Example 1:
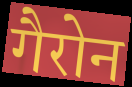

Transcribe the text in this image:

गैरोन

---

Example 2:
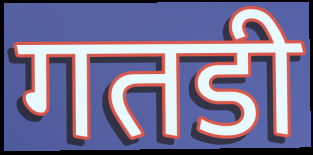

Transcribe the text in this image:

गतडी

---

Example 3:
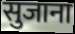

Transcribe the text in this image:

सुजाना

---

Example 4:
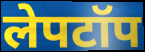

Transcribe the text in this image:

लेपटॉप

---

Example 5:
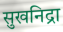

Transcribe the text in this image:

सुखनिद्रा